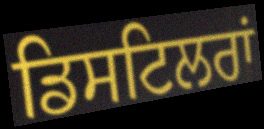
ਡਿਸਟਿਲਰਾਂ